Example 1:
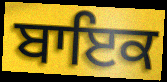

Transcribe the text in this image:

ਬਾਇਕ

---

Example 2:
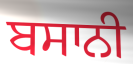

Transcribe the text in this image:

ਬਸਾਨੀ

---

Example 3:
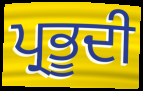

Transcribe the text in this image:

ਪ੍ਰਭੂਦੀ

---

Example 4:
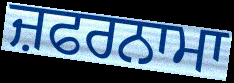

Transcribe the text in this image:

ਜ਼ਫਰਨਾਮਾ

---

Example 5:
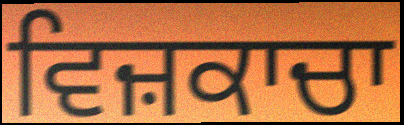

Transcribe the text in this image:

ਵਿਜ਼ਕਾਚਾ